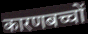
कारणबच्चों